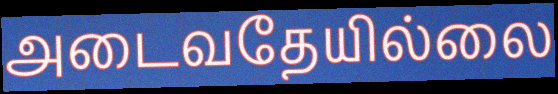
அடைவதேயில்லை